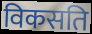
विकसति